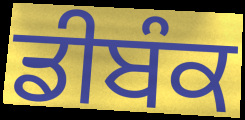
ਡੀਬੰਕ